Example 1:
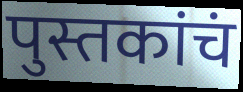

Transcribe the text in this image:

पुस्तकांचं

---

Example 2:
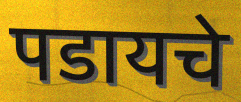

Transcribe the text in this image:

पडायचे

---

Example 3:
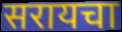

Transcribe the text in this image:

सरायचा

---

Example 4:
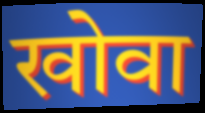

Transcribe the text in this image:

खोवा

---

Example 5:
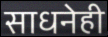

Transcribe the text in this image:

साधनेही